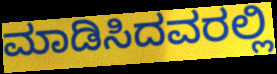
ಮಾಡಿಸಿದವರಲ್ಲಿ